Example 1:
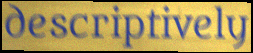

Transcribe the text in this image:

descriptively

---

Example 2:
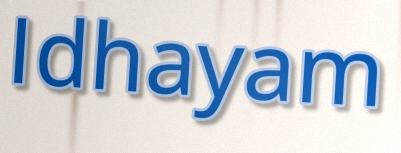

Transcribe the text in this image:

Idhayam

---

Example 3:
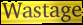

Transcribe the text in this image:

Wastage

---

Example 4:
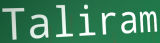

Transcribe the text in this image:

Taliram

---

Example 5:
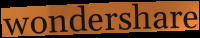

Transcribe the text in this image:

wondershare